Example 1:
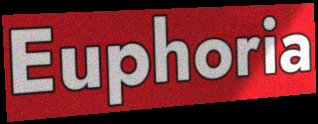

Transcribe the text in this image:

Euphoria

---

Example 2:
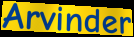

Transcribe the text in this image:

Arvinder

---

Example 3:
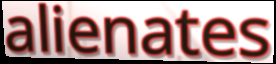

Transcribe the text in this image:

alienates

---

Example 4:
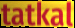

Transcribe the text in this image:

tatkal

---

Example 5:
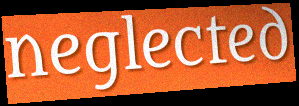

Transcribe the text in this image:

neglected